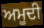
ਅਮੂਦੀ